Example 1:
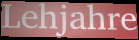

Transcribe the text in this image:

Lehjahre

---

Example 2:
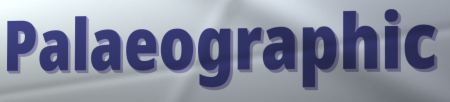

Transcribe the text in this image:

Palaeographic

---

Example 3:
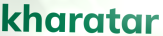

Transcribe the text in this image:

kharatar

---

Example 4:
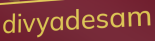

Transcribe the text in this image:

divyadesam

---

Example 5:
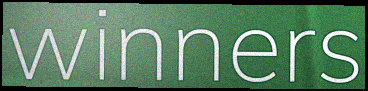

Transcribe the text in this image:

winners